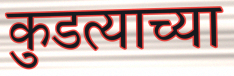
कुडत्याच्या